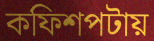
কফিশপটায়